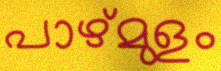
പാഴ്മുളം